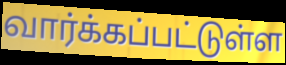
வார்க்கப்பட்டுள்ள